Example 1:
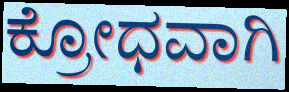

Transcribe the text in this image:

ಕ್ರೋಧವಾಗಿ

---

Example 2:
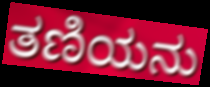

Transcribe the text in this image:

ತಣಿಯನು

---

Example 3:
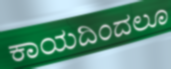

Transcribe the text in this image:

ಕಾಯದಿಂದಲೂ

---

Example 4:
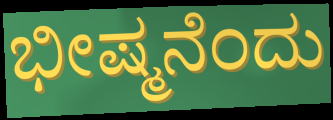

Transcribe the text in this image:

ಭೀಷ್ಮನೆಂದು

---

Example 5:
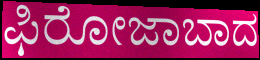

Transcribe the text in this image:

ಫಿರೋಜಾಬಾದ